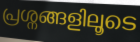
പ്രശ്നങ്ങളിലൂടെ